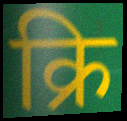
क्रि